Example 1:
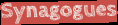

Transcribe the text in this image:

Synagogues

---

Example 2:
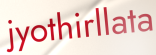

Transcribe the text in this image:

jyothirllata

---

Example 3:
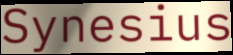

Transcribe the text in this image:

Synesius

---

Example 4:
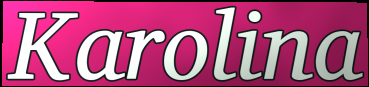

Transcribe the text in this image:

Karolina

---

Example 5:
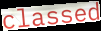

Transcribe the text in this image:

classed